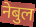
नेबुल